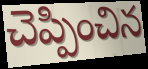
చెప్పించిన